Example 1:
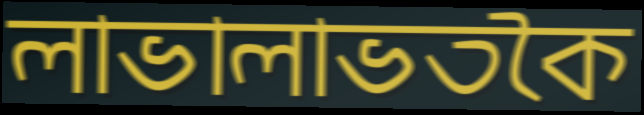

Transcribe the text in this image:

লাভালাভতকৈ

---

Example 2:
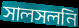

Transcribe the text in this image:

সালসলনি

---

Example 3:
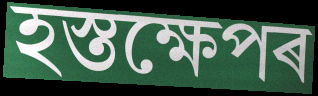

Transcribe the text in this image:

হস্তক্ষেপৰ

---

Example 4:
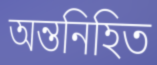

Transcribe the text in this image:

অন্তনিহিত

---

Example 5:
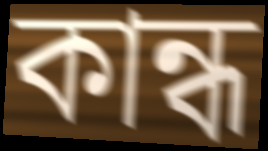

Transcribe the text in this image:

কান্ধ